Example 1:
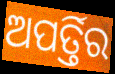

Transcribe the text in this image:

ଅପର୍ତ୍ତିର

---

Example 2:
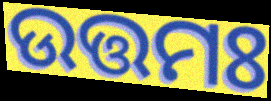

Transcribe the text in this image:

ଉତ୍ତମଃ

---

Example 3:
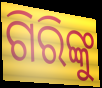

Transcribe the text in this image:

ଗିରିଙ୍କୁ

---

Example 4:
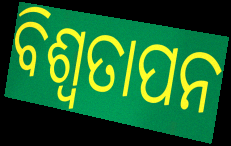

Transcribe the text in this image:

ବିଶ୍ବତାପନ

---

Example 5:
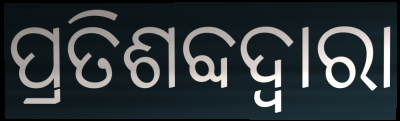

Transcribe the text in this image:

ପ୍ରତିଶବ୍ଦଦ୍ୱାରା